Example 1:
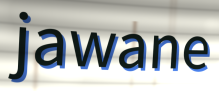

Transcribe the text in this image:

jawane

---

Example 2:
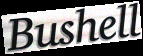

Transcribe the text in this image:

Bushell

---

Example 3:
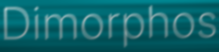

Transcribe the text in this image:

Dimorphos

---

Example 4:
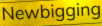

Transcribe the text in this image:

Newbigging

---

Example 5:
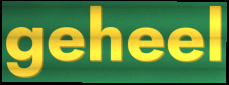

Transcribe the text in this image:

geheel